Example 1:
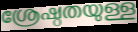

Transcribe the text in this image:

ശ്രേഷ്ഠതയുള്ള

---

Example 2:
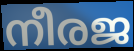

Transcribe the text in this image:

നീരജ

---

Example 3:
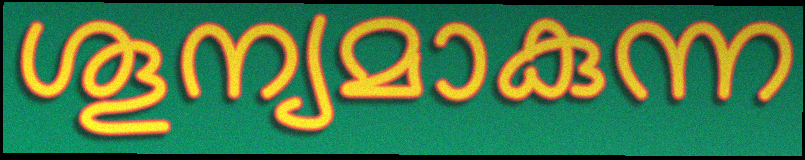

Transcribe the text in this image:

ശൂന്യമാകുന്ന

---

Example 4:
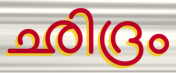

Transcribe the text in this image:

ഛിദ്രം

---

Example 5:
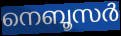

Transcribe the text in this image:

നെബൂസർ